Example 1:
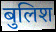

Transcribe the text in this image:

बुलिश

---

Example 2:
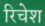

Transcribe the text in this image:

रिचेश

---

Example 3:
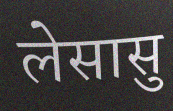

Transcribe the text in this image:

लेसासु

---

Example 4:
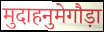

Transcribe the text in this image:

मुदाहनुमेगौड़ा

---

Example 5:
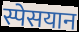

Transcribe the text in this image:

स्पेसयान